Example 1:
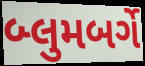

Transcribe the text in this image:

બ્લુમબર્ગે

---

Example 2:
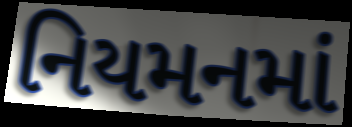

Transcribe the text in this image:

નિયમનમાં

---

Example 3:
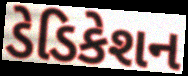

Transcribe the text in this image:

ડેડિકેશન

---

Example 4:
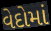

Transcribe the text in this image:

વેદોમાં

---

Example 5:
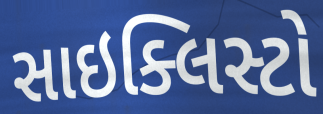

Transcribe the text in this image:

સાઇક્લિસ્ટો